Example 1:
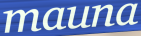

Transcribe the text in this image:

mauna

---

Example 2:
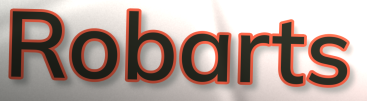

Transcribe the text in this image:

Robarts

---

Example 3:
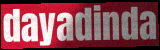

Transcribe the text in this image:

dayadinda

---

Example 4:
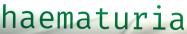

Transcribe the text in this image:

haematuria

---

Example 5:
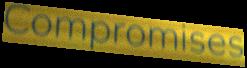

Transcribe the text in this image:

Compromises